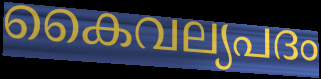
കൈവല്യപദം